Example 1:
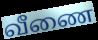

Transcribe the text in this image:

வீணை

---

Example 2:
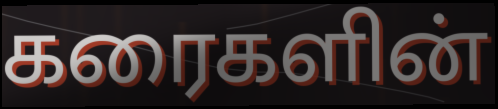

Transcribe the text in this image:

கரைகளின்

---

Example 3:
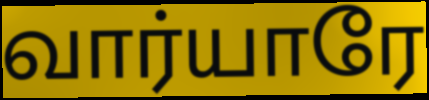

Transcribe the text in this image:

வார்யாரே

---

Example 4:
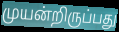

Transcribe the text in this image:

முயன்றிருப்பது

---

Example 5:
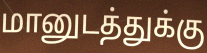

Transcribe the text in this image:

மானுடத்துக்கு